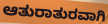
ಆತುರಾತುರವಾಗಿ